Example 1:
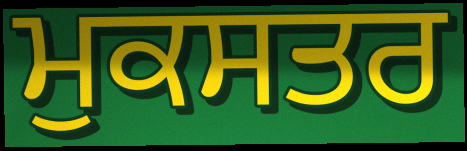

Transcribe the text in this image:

ਮੁਕਸਤਰ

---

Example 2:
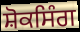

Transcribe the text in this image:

ਸ਼ੋਕਸਿੰਗ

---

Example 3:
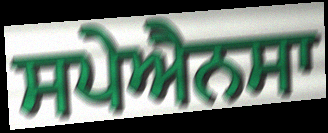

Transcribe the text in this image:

ਸਪੇਐਨਸਾ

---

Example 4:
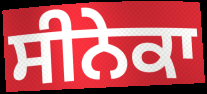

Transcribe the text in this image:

ਸੀਨੇਕਾ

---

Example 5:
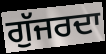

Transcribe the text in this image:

ਗੁੱਜਰਦਾ